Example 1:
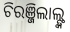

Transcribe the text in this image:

ଚିରଞ୍ଜିଲାଲ୍ଙ୍କ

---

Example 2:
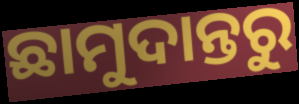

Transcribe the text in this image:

ଛାମୁଦାନ୍ତରୁ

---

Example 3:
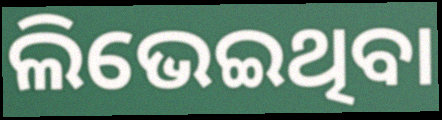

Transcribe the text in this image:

ଲିଭେଇଥିବା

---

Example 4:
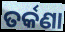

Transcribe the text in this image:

ତର୍କଣା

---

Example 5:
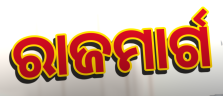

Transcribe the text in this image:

ରାଜମାର୍ଗ